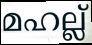
മഹല്ല്